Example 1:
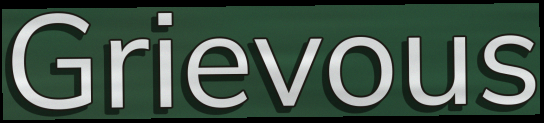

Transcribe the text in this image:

Grievous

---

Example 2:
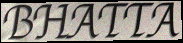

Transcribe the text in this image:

BHATTA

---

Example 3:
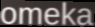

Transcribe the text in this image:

omeka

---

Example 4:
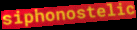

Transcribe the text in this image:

siphonostelic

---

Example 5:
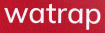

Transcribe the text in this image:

watrap